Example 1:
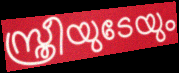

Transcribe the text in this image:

സ്ത്രീയുടേയും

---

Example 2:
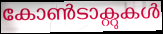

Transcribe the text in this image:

കോൺടാക്റ്റുകൾ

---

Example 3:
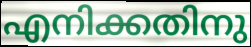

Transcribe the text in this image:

എനിക്കതിനു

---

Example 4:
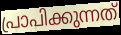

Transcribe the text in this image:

പ്രാപിക്കുന്നത്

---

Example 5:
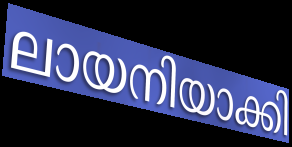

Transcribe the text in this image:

ലായനിയാക്കി